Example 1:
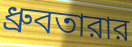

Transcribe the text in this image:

ধ্রুবতারার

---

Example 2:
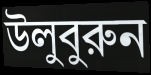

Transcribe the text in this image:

উলুবুরুন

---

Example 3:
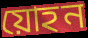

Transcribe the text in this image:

য়োহন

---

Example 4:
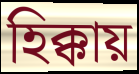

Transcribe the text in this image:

হিক্কায়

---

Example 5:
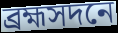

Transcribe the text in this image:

ব্রহ্মসদনে